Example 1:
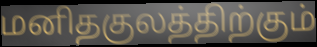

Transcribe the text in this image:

மனிதகுலத்திற்கும்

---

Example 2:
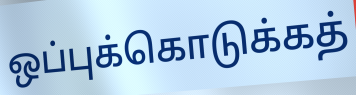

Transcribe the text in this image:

ஒப்புக்கொடுக்கத்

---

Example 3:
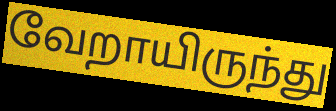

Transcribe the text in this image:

வேறாயிருந்து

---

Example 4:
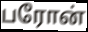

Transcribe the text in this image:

பரோன்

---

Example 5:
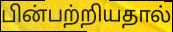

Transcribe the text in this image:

பின்பற்றியதால்